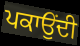
ਪਕਾਉਂਦੀ